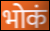
भोकं